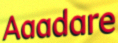
Aaadare